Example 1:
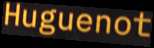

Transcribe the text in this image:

Huguenot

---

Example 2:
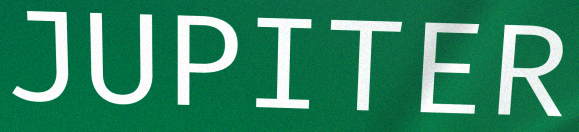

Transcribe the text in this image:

JUPITER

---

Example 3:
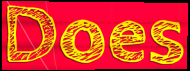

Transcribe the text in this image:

Does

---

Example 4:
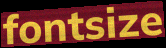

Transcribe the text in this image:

fontsize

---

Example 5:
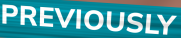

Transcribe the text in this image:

PREVIOUSLY